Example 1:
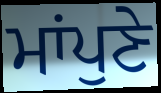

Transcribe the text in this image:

ਮਾਂਪੁਣੇ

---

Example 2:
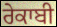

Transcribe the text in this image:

ਰੇਕਾਬੀ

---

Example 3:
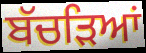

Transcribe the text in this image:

ਬੱਚੜਿਆਂ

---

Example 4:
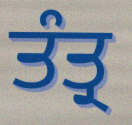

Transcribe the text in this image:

ਤੰਤ੍ਰ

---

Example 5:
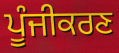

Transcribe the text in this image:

ਪੂੰਜੀਕਰਣ